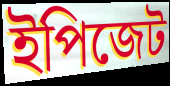
ইপিজেট